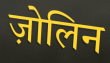
ज़ोलिन